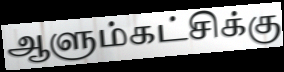
ஆளும்கட்சிக்கு